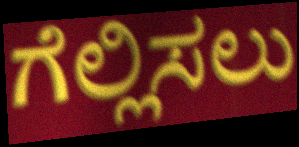
ಗೆಲ್ಲಿಸಲು